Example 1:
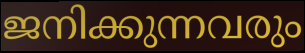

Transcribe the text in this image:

ജനിക്കുന്നവരും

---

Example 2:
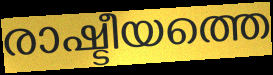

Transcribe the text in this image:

രാഷ്ടീയത്തെ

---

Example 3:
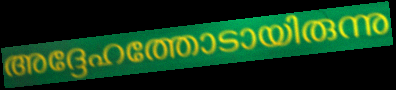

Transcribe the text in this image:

അദ്ദേഹത്തോടായിരുന്നു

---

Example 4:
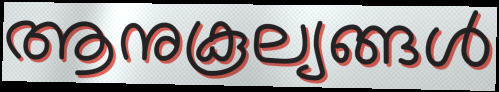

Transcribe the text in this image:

ആനുകൂല്യങ്ങൾ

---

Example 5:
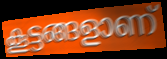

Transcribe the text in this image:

കൂട്ടങ്ങളാണ്